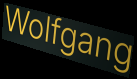
Wolfgang